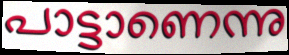
പാട്ടാണെന്നു